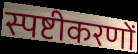
स्पष्टीकरणों